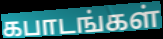
கபாடங்கள்